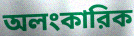
অলংকারিক